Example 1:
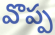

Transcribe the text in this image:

వొప్ప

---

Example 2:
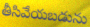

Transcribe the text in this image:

తీసివేయబడును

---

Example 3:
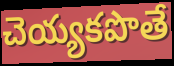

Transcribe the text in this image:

చెయ్యకపొతే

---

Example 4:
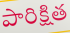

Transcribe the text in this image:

పారిక్షిత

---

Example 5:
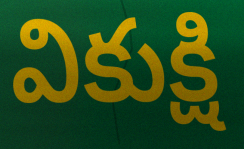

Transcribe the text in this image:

వికుక్షి